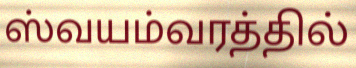
ஸ்வயம்வரத்தில்